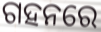
ଗହନରେ